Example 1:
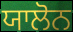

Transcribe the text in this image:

ਯਾਲੋਨ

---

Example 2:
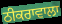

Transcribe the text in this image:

ਠੀਕਰਾਵਾਲਾ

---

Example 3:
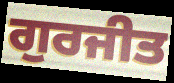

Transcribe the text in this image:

ਗੁਰਜੀਤ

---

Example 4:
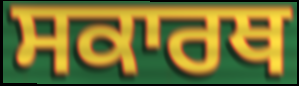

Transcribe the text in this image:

ਸਕਾਰਥ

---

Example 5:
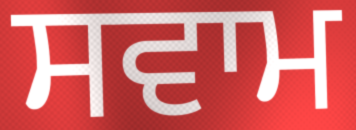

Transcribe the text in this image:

ਸਵਾਮ